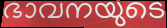
ഭാവനയുടെ